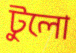
টুলো